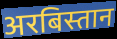
अरबिस्तान